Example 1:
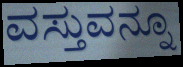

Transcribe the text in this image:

ವಸ್ತುವನ್ನೂ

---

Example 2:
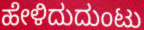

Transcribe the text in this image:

ಹೇಳಿದುದುಂಟು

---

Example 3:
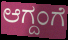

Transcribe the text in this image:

ಆಗ್ದಂಗೆ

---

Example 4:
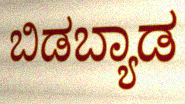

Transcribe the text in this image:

ಬಿಡಬ್ಯಾಡ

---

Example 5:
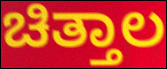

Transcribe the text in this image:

ಚಿತ್ತಾಲ